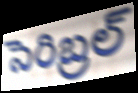
సెరిబ్రల్